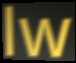
Iw